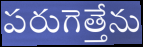
పరుగెత్తేను